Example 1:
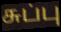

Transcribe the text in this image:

சுப்பு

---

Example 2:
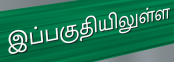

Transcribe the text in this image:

இப்பகுதியிலுள்ள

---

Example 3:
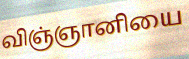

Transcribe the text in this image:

விஞ்ஞானியை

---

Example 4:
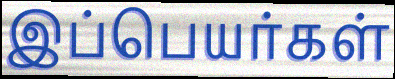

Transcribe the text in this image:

இப்பெயர்கள்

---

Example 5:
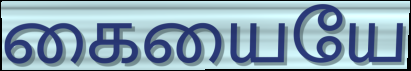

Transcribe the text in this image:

கையையே